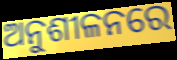
ଅନୁଶୀଳନରେ